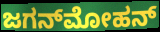
ಜಗನ್‌ಮೋಹನ್